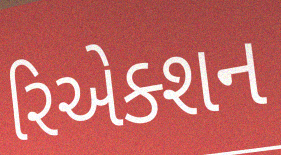
રિએક્શન